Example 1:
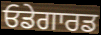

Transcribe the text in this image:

ਓਡੇਗਾਰਡ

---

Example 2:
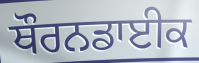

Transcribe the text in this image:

ਥੌਰਨਡਾਈਕ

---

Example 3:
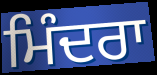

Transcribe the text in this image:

ਮਿੰਦਰਾ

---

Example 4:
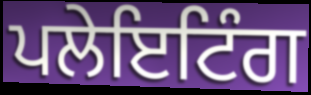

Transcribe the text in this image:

ਪਲੇਇਟਿੰਗ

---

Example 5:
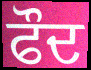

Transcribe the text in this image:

ਫੌਦ